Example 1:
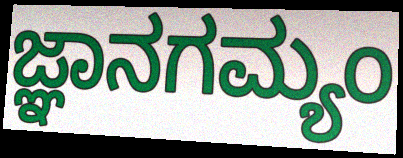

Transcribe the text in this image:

ಜ್ಞಾನಗಮ್ಯಂ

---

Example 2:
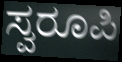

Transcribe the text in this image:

ಸ್ವರೂಪಿ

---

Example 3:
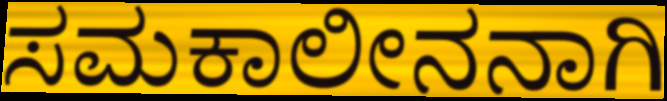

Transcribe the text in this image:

ಸಮಕಾಲೀನನಾಗಿ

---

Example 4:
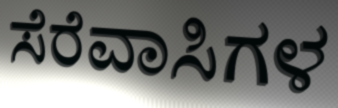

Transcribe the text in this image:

ಸೆರೆವಾಸಿಗಳ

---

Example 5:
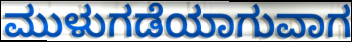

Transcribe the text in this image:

ಮುಳುಗಡೆಯಾಗುವಾಗ